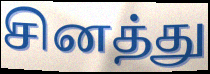
சினத்து